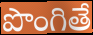
పొంగితే